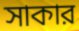
সাকার